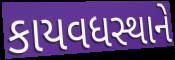
કાયવધસ્થાને